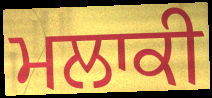
ਮਲਾਕੀ